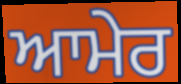
ਆਮੇਰ